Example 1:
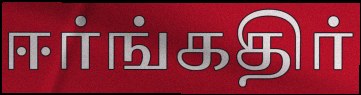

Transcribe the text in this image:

ஈர்ங்கதிர்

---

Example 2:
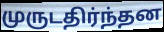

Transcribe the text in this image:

முருடதிர்ந்தன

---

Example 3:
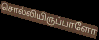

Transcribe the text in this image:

சொல்லியிருப்பாளோ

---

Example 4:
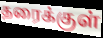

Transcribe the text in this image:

தரைக்குள்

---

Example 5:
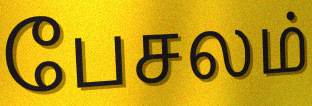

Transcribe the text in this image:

பேசலம்